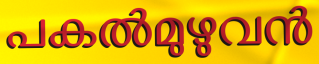
പകൽമുഴുവൻ